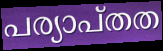
പര്യാപ്തത